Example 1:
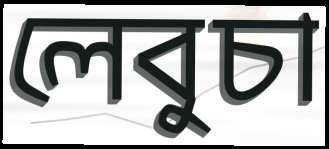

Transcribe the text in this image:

লেবুচা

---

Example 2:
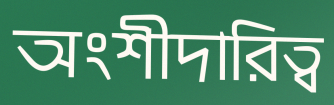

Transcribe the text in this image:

অংশীদারিত্ব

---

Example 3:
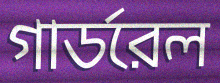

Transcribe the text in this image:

গার্ডরেল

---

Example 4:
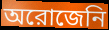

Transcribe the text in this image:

অরোজেনি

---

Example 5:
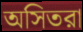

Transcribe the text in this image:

অসিতরা